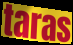
taras